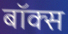
बॉक्‍स